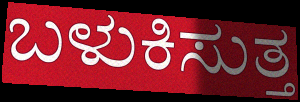
ಬಳುಕಿಸುತ್ತ